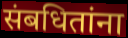
संबधितांना